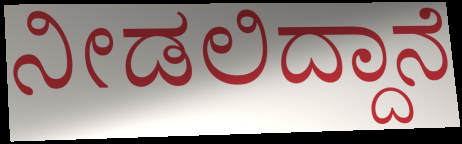
ನೀಡಲಿದ್ದಾನೆ